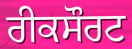
ਰੀਕਸੌਰਟ